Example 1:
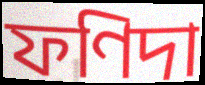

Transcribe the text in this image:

ফণিদা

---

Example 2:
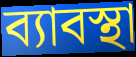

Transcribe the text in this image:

ব্যাবস্থা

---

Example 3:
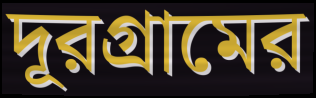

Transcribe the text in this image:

দূরগ্রামের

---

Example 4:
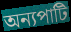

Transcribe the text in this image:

অন্যপাটি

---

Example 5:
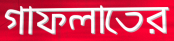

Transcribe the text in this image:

গাফলাতের